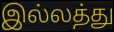
இல்லத்து